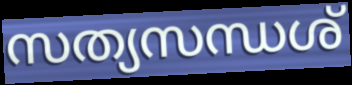
സത്യസന്ധശ്